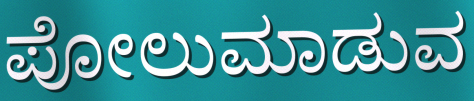
ಪೋಲುಮಾಡುವ